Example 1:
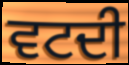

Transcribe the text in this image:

ਵਟਦੀ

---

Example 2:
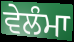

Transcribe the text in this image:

ਵੇਲੰਮਾ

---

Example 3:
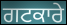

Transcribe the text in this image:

ਗਟਕਾਰੇ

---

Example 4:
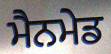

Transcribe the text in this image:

ਮੈਨਮੇਡ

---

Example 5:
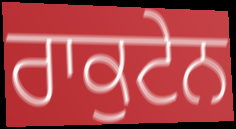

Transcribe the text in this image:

ਰਾਕੁਟੇਨ